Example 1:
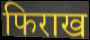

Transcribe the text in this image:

फिराख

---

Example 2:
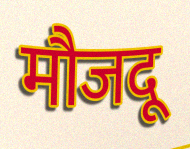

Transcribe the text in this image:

मौजदू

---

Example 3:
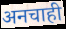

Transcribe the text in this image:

अनचाही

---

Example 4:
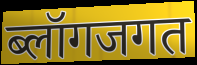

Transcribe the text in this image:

ब्लॉगजगत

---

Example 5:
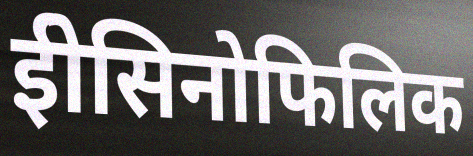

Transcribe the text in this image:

ईोसिनोफिलिक